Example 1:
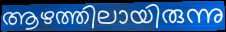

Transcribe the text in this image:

ആഴത്തിലായിരുന്നു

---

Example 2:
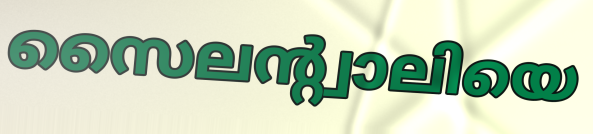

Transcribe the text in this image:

സൈലന്റ്വാലിയെ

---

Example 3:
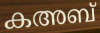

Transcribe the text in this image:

കഅബ്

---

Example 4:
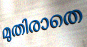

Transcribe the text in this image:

മുതിരാതെ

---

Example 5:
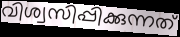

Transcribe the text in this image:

വിശ്വസിപ്പിക്കുന്നത്